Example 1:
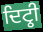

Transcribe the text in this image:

ਦਿਟ੍ਠੀ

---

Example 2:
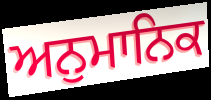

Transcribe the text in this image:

ਅਨੁਮਾਨਿਕ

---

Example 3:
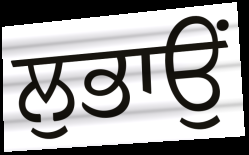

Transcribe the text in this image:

ਲੁਭਾਉਂ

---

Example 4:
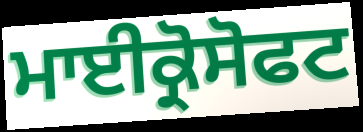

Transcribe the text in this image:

ਮਾਈਕ੍ਰੋਸੋਫਟ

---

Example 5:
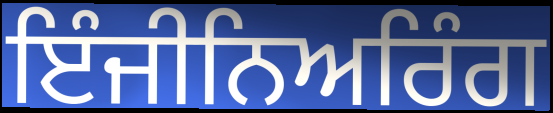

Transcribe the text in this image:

ਇੰਜੀਨਿਅਰਿੰਗ